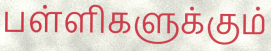
பள்ளிகளுக்கும்